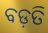
ବଡ଼ତି